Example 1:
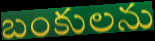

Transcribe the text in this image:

బంకులను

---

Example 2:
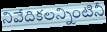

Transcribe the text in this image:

నివేదికలన్నింటినీ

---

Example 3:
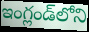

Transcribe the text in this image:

ఇంగ్లండ్‌లోని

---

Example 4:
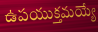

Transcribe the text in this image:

ఉపయుక్తమయ్యే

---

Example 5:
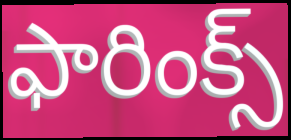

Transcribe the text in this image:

ఫారింక్స్